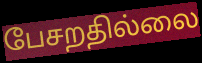
பேசறதில்லை